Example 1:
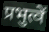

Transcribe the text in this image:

प्रभुत्वें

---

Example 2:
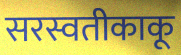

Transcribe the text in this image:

सरस्वतीकाकू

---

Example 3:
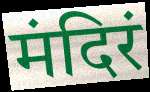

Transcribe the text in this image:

मंदिरं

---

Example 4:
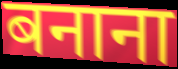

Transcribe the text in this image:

बनाना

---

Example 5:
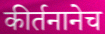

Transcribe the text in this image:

कीर्तनानेच